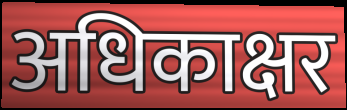
अधिकाक्षर